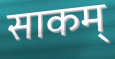
साकम्